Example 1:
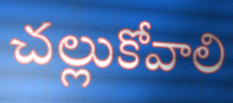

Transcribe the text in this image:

చల్లుకోవాలి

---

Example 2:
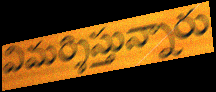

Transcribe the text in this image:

విమర్శిస్తున్నారు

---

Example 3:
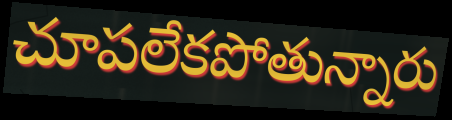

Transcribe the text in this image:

చూపలేకపోతున్నారు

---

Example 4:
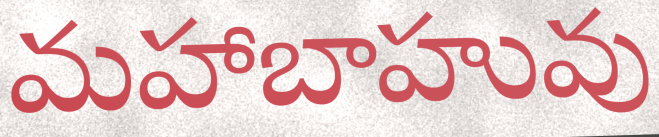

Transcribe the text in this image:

మహాబాహువు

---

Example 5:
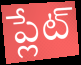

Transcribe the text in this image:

ప్లేట్